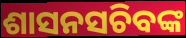
ଶାସନସଚିବଙ୍କ